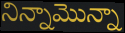
నిన్నామొన్నా